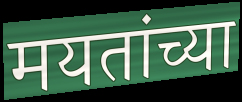
मयतांच्या